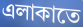
এলাকাতে